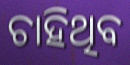
ଚାହିଥିବ